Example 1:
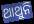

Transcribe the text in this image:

ଥାଥୁନି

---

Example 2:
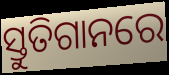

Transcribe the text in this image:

ସ୍ତୁତିଗାନରେ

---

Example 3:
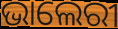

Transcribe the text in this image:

ଭାଲେରୀ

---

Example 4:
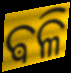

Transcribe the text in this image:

ଵଳି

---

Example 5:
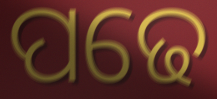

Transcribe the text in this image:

ପଢେ